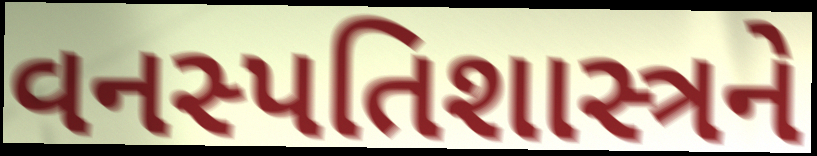
વનસ્પતિશાસ્ત્રને